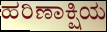
ಹರಿಣಾಕ್ಷಿಯ